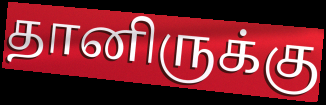
தானிருக்கு